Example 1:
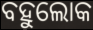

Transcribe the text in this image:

ବହୁଲୋକ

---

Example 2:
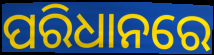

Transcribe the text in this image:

ପରିଧାନରେ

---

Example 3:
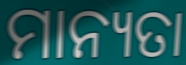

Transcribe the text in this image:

ମାନ୍ୟତା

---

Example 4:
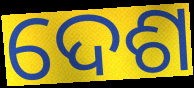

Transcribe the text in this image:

ଦେଶ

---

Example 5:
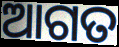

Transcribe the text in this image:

ଆଗତ